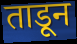
ताडून